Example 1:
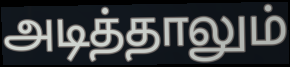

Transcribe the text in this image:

அடித்தாலும்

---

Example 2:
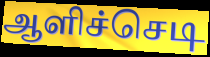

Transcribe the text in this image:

ஆளிச்செடி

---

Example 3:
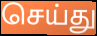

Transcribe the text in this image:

செய்து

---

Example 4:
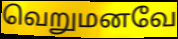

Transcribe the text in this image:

வெறுமனவே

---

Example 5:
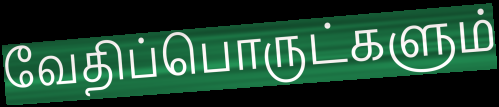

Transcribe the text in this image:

வேதிப்பொருட்களும்